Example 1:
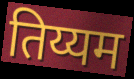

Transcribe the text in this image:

तिय्यम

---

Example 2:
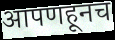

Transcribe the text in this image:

आपणहूनच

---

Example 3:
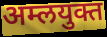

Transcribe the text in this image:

अम्लयुक्त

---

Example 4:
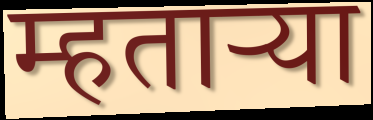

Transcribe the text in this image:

म्हताऱ्या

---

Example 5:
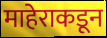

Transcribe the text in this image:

माहेराकडून